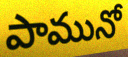
పామునో